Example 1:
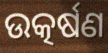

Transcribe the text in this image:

ଉତ୍କର୍ଷଣ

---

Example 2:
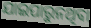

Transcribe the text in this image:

ଯାଇପାରୁନଥିବା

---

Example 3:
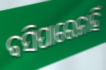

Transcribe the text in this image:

ବସିପାରେନାହିଁ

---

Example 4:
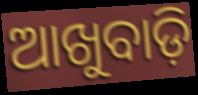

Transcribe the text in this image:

ଆଖୁବାଡ଼ି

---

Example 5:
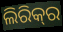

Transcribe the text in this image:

ଲିରିକ୍‍ର